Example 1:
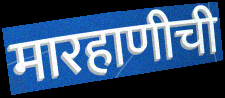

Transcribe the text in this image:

मारहाणीची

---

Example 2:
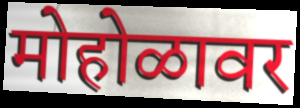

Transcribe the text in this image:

मोहोळावर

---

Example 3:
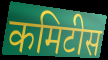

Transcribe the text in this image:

कमिटीस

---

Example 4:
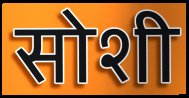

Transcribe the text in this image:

सोशी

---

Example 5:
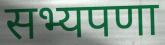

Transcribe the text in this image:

सभ्यपणा